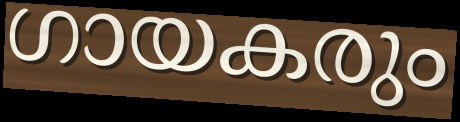
ഗായകരും